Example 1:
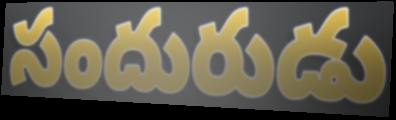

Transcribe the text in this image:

సందురుడు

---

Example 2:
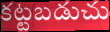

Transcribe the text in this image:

కట్టబడుచు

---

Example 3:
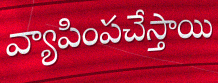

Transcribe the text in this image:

వ్యాపింపచేస్తాయి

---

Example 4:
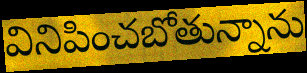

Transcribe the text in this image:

వినిపించబోతున్నాను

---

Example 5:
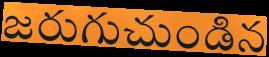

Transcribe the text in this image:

జరుగుచుండిన